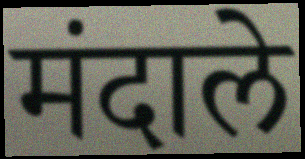
मंदाले